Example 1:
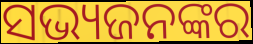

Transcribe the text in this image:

ସଭ୍ୟଜନଙ୍କର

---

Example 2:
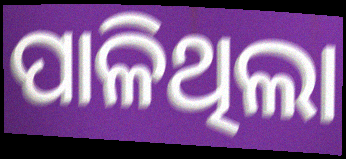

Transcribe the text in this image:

ପାଳିଥିଲା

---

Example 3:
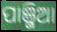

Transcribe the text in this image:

ପାଞ୍ଜିଆ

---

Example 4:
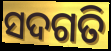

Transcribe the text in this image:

ସଦଗତି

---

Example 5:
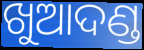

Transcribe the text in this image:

ଖୁଆଦଣ୍ଡ